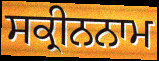
ਸਕ੍ਰੀਨਨਾਮ